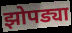
झोपड्या